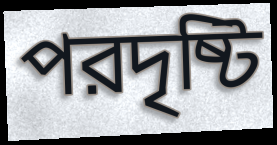
পরদৃষ্টি